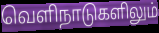
வெளிநாடுகளிலும்